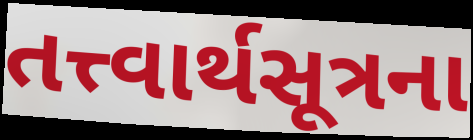
તત્ત્વાર્થસૂત્રના